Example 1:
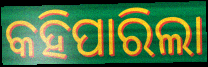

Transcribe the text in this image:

କହିପାରିଲା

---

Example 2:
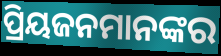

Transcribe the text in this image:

ପ୍ରିୟଜନମାନଙ୍କର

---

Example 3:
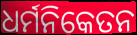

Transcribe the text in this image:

ଧର୍ମନିକେତନ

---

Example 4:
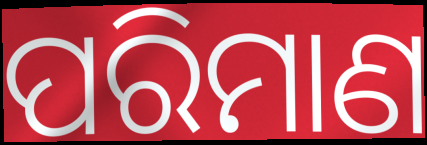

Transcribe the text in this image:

ପରିମାଣ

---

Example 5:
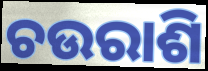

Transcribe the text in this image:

ଚଉରାଶି